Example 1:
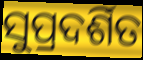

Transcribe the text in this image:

ସୁପ୍ରଦର୍ଶିତ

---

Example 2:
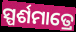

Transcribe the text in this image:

ସ୍ପର୍ଶମାତ୍ରେ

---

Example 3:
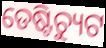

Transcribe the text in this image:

ଡେଷ୍ଟିଚ୍ୟୁଟ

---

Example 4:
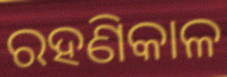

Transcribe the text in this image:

ରହଣିକାଳ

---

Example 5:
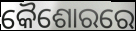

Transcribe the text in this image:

କୈଶୋରରେ